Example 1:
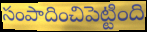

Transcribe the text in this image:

సంపాదించిపెట్టింది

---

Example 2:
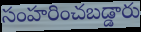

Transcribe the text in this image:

సంహరించబడ్డారు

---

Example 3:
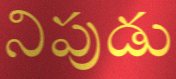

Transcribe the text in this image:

నిపుడు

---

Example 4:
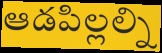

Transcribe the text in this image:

ఆడపిల్లల్ని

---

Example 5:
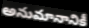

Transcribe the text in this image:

అనుమానానికీ